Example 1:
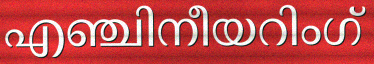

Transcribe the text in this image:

എഞ്ചിനീയറിംഗ്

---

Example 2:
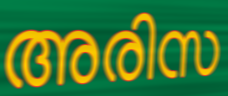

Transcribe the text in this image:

അരിസ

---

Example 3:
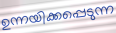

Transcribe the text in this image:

ഉന്നയിക്കപ്പെടുന്ന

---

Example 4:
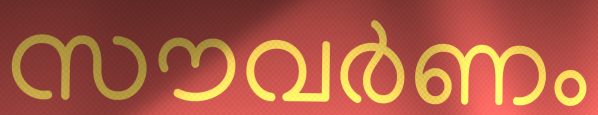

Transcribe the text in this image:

സൗവർണം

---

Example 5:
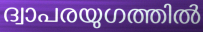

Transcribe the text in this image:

ദ്വാപരയുഗത്തിൽ